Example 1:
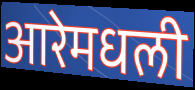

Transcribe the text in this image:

आरेमधली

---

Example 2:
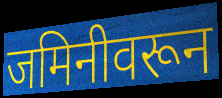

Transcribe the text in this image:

जमिनीवरून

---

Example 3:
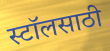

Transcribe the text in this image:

स्टॉलसाठी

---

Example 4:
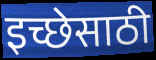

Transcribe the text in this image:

इच्छेसाठी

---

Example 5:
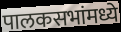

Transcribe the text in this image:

पालकसभांमध्ये